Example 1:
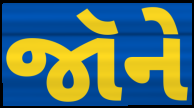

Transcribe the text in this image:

જૉને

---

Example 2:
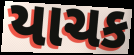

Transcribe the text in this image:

યાચક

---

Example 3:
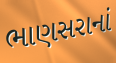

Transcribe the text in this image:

ભાણસરાનાં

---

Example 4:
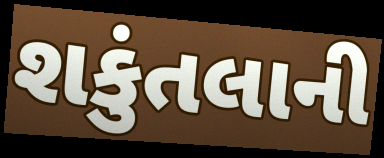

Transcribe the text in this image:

શકુંતલાની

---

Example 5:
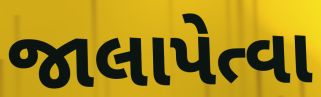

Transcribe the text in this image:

જાલાપેત્વા